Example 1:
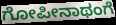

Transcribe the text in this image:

ಗೋಪೀನಾಥಂಗೆ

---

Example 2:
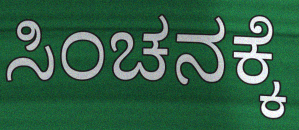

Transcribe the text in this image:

ಸಿಂಚನಕ್ಕೆ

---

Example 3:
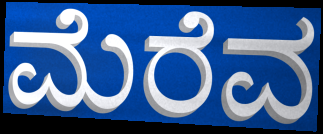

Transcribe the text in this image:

ಮೆರೆವ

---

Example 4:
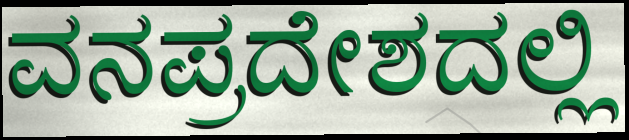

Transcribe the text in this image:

ವನಪ್ರದೇಶದಲ್ಲಿ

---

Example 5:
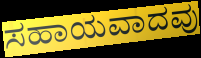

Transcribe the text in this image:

ಸಹಾಯವಾದವು